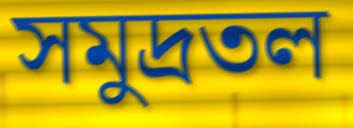
সমুদ্রতল